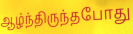
ஆழ்ந்திருந்தபோது